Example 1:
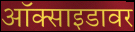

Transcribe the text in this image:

ऑक्साइडावर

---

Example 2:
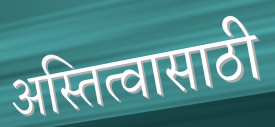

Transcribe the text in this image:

अस्तित्वासाठी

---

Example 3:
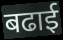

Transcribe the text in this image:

बढाई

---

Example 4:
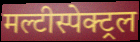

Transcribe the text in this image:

मल्टीस्पेक्ट्रल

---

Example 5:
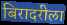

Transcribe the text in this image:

बिरादरीला